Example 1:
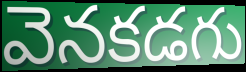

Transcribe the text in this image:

వెనకడగు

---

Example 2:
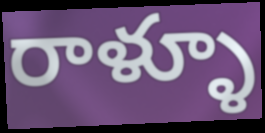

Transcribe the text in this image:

రాళ్ళూ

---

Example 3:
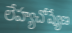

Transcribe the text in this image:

లేహ్యచోష్యేణ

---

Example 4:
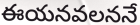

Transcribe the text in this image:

ఈయనవలననే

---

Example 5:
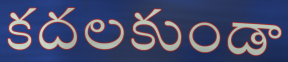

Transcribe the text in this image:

కదలకుండా